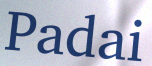
Padai